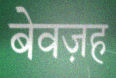
बेवज़ह